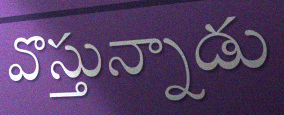
వొస్తున్నాడు